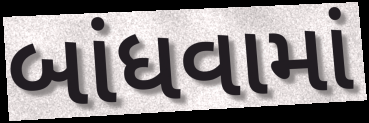
બાંધવામાં